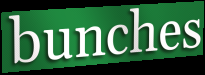
bunches